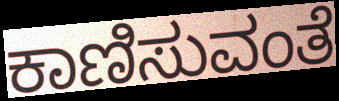
ಕಾಣಿಸುವಂತೆ